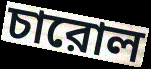
চারোল